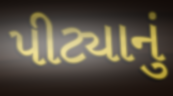
પીટ્યાનું